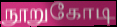
நூறுகோடி